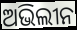
ଅଭିଲୀନ